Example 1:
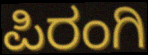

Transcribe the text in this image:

ಪಿರಂಗಿ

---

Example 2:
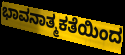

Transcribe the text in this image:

ಭಾವನಾತ್ಮಕತೆಯಿಂದ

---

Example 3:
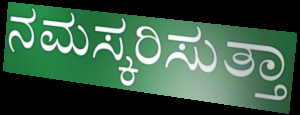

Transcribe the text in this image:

ನಮಸ್ಕರಿಸುತ್ತಾ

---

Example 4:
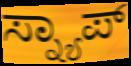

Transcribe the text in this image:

ಸ್ನ್ಯಾಪ್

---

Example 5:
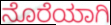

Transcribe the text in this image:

ನೊರೆಯಾಗಿ